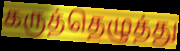
கருத்தெழுத்து